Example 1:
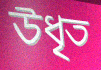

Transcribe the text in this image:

উধৃত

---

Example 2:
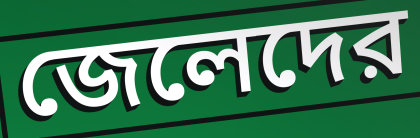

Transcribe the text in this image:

জেলেদের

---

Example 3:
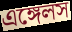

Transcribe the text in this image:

এঙ্গেলস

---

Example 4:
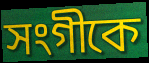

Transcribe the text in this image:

সংগীকে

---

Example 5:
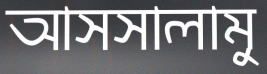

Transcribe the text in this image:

আসসালামু